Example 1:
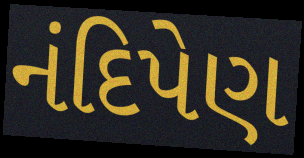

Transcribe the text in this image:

નંદિપેણ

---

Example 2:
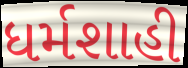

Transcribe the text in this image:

ધર્મશાહી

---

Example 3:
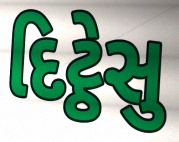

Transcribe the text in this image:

દિટ્ઠેસુ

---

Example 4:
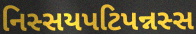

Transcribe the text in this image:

નિસ્સયપટિપન્નસ્સ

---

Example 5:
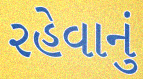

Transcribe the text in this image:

રહેવાનું